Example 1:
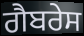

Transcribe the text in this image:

ਗੈਬਰੇਸ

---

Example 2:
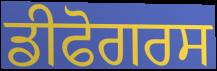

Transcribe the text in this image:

ਡੀਫੋਗਰਸ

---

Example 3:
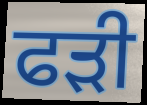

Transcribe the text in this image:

ਫੜੀ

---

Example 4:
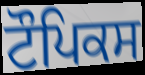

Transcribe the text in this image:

ਟੌਪਿਕਸ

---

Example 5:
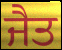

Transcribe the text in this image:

ਜੈਤ